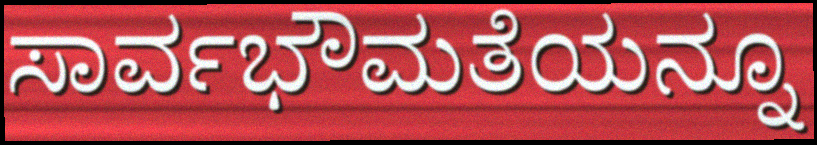
ಸಾರ್ವಭೌಮತೆಯನ್ನೂ